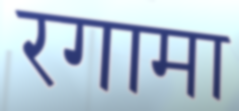
रगामा